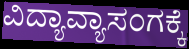
ವಿದ್ಯಾವ್ಯಾಸಂಗಕ್ಕೆ